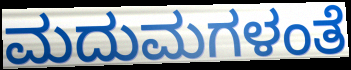
ಮದುಮಗಳಂತೆ